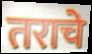
तराचे